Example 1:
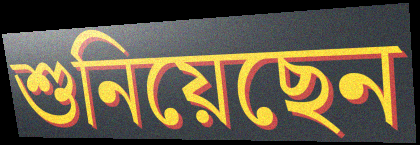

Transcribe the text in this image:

শুনিয়েছেন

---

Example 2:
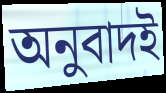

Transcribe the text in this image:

অনুবাদই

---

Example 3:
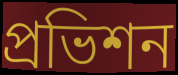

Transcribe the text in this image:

প্রভিশন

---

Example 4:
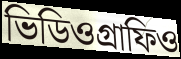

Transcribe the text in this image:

ভিডিওগ্রাফিও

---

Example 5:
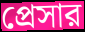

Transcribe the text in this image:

প্রেসার